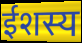
ईशस्य